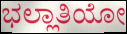
ಭಲ್ಲಾತಿಯೋ